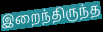
இறைந்திருந்த